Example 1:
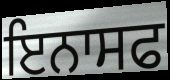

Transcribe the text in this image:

ਇਨਾਸਫ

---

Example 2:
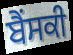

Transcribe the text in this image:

ਬੈਂਸਕੀ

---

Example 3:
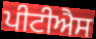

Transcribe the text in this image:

ਪੀਟੀਐਸ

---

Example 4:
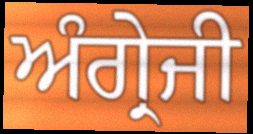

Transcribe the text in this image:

ਅੰਗ੍ਰੇਜੀ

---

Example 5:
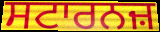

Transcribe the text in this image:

ਸਟਾਰਨਜ਼